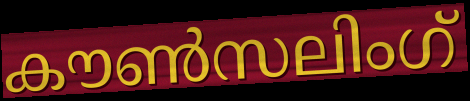
കൗൺസലിംഗ്